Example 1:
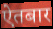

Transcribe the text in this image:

ऐतबार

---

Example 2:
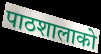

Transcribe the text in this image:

पाठशालाको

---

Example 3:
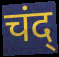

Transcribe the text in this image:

चंद्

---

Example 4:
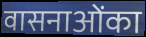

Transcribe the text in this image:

वासनाओंका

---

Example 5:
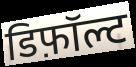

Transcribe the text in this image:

डिफ़ॉल्ट